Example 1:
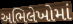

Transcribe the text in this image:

અભિલેખોમાં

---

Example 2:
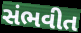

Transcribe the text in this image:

સંભવીત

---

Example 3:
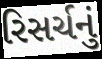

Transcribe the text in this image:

રિસર્ચનું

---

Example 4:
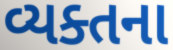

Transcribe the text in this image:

વ્યક્તના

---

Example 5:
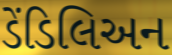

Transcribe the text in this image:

ડેંડિલિઅન